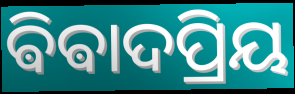
ଵିଵାଦପ୍ରିୟ